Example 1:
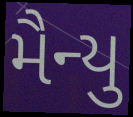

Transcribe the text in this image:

મૈન્યુ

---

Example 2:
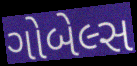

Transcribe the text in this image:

ગોબેલ્સ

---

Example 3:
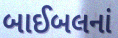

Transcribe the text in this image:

બાઈબલનાં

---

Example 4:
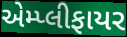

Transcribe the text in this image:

એમ્પ્લીફાયર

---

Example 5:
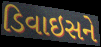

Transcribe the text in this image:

ડિવાઇસને